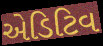
એડિટિવ